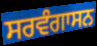
ਸਰਵੰਗਾਸਨ